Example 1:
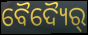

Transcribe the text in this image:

ବୈଦ୍ୟୈର୍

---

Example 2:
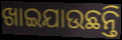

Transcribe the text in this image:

ଖାଇଯାଉଛନ୍ତି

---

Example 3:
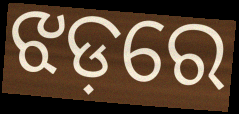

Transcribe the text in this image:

ଝଡ଼ରେ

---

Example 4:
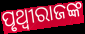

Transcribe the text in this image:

ପୃଥ୍ୱୀରାଜଙ୍କ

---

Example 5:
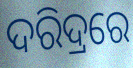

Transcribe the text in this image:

ଦରିଦ୍ରରେ